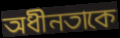
অধীনতাকে